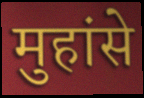
मुहांसे